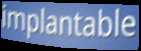
implantable